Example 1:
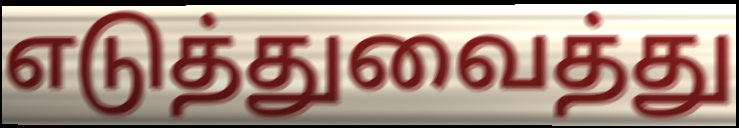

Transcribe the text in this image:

எடுத்துவைத்து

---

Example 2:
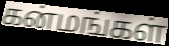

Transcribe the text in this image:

கன்மங்கள்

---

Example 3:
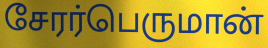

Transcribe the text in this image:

சேரர்பெருமான்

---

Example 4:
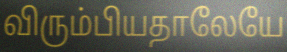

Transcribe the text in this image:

விரும்பியதாலேயே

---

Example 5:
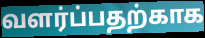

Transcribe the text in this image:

வளர்ப்பதற்காக